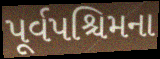
પૂર્વપશ્ચિમના